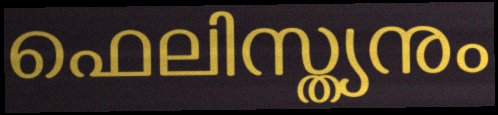
ഫെലിസ്ത്യനും